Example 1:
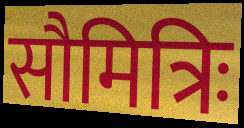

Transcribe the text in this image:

सौमित्रिः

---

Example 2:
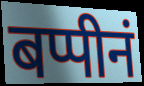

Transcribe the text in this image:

बप्पीनं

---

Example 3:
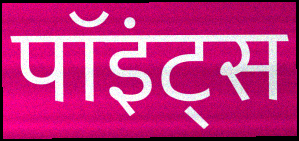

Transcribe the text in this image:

पॉइंट्स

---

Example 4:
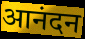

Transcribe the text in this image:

आनंदन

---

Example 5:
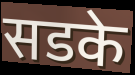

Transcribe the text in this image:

सडके